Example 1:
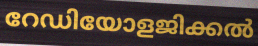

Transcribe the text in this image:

റേഡിയോളജിക്കൽ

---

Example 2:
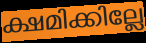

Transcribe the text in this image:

ക്ഷമിക്കില്ലേ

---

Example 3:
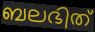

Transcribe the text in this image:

ബലഭിത്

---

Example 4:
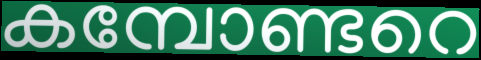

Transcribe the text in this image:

കമ്പോണ്ടറെ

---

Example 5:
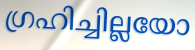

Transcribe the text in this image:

ഗ്രഹിച്ചില്ലയോ